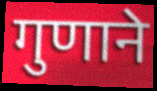
गुणाने